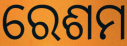
ରେଶମ